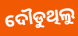
ଦୌଡୁଥିଲୁ